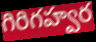
గిరిగహ్వర